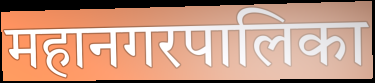
महानगरपालिका